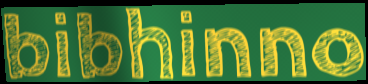
bibhinno